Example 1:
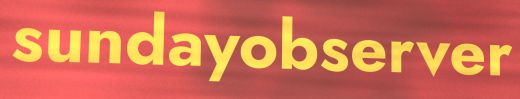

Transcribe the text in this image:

sundayobserver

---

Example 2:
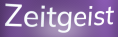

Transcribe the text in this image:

Zeitgeist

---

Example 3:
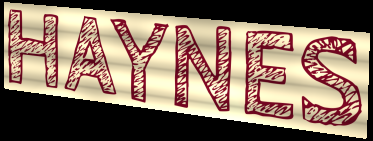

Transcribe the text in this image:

HAYNES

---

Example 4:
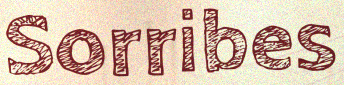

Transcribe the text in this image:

Sorribes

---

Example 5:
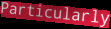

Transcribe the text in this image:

Particularly